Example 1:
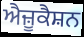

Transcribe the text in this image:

ਐਜ਼ੂਕੈਸ਼ਨ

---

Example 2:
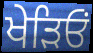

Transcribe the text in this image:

ਖੇੜਿਓਂ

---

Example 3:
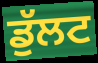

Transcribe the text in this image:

ਡੁੱਲਟ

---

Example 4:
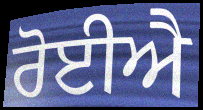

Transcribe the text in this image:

ਰੋਈਐ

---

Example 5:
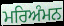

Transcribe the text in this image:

ਮਰਿਅੰਮਨ